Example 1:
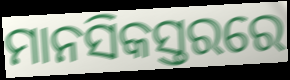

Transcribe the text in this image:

ମାନସିକସ୍ତରରେ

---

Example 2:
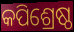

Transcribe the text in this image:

କପିଶ୍ରେଷ୍ଠ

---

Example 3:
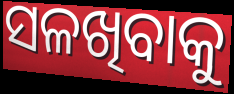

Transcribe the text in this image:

ସଳଖିବାକୁ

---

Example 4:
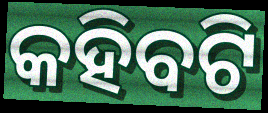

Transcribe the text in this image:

କହିବଟି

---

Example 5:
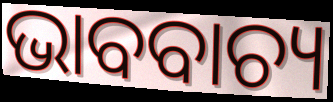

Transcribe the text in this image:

ଭାବବାଚ୍ୟ